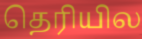
தெரியில